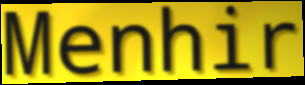
Menhir